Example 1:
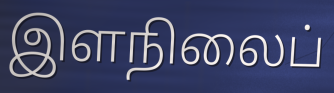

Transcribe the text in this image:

இளநிலைப்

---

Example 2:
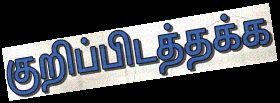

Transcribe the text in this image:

குறிப்பிடத்தக்க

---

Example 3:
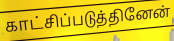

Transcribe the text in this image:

காட்சிப்படுத்தினேன்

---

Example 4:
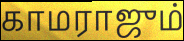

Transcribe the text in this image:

காமராஜும்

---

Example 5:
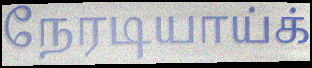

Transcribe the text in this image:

நேரடியாய்க்